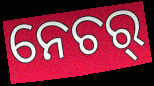
ନେଚର୍